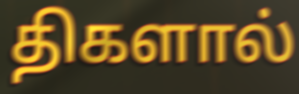
திகளால்